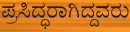
ಪ್ರಸಿದ್ಧರಾಗಿದ್ದವರು